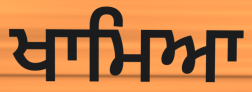
ਖਾਮਿਆ